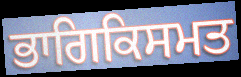
ਭਾਗਿਕਿਸਮਤ